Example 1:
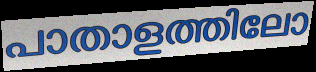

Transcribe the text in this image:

പാതാളത്തിലോ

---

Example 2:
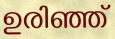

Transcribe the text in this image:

ഉരിഞ്ഞ്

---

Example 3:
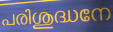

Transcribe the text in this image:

പരിശുദ്ധനേ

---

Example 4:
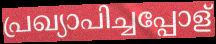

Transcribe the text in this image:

പ്രഖ്യാപിച്ചപ്പോള്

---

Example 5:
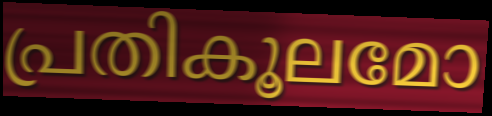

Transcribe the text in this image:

പ്രതികൂലമോ